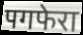
पगफेरा